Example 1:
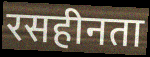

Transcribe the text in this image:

रसहीनता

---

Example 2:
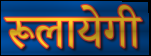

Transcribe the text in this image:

रूलायेगी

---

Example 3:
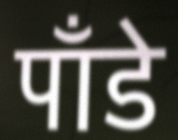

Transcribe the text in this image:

पाँडे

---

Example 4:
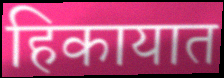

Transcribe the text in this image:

हिकायात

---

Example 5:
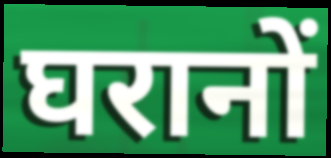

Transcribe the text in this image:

घरानों